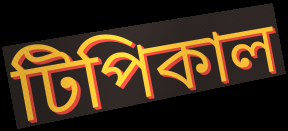
টিপিকাল